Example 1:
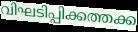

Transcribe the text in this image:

വിഘടിപ്പിക്കത്തക്ക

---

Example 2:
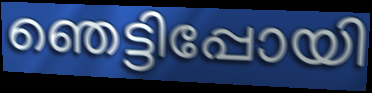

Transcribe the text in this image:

ഞെട്ടിപ്പോയി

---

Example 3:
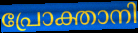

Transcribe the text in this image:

പ്രോക്താനി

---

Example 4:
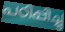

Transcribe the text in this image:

പഠിപ്പിച്ചു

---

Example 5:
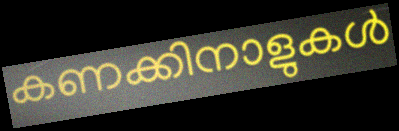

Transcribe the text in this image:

കണക്കിനാളുകൾ